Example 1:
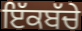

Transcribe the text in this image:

ਇੱਕਬੱਚੇ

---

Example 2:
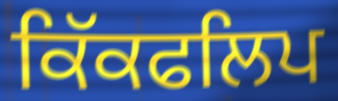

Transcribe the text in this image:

ਕਿੱਕਫਲਿਪ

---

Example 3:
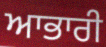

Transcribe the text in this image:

ਆਭਾਰੀ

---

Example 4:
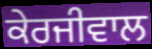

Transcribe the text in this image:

ਕੇਰਜੀਵਾਲ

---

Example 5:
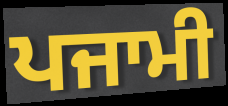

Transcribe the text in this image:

ਪਜਾਮੀ